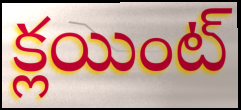
క్లయింట్